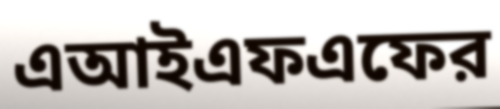
এআইএফএফের